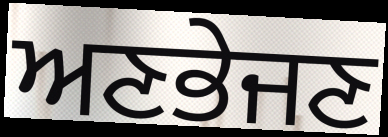
ਅਣਭੇਜਣ